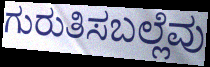
ಗುರುತಿಸಬಲ್ಲೆವು